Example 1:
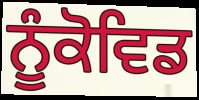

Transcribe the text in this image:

ਨੂੰਕੋਵਿਡ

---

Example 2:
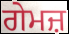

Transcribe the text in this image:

ਗੇਮਜ਼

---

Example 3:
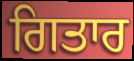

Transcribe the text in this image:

ਗਿਤਾਰ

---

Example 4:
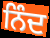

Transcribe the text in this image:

ਨਿੰਦ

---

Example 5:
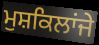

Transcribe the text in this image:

ਮੁਸ਼ਕਿਲਾਂਜੇ